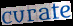
curate